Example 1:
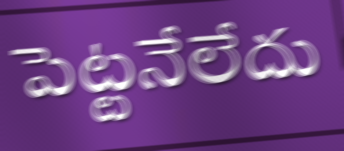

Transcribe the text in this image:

పెట్టనేలేదు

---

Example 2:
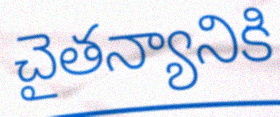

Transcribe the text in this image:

చైతన్యానికి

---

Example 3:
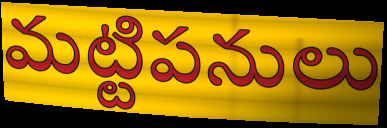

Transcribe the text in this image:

మట్టిపనులు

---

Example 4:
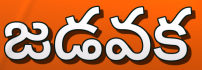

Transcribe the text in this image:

జడవక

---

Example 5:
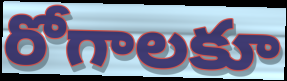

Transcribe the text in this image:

రోగాలకూ